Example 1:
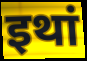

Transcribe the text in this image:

इथां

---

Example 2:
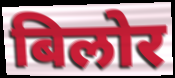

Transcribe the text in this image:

बिलोर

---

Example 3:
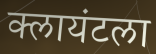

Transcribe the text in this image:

क्लायंटला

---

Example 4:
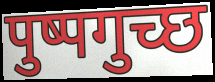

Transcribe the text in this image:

पुष्पगुच्छ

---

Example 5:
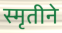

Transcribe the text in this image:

स्मृतीने